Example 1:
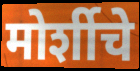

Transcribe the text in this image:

मोर्शीचे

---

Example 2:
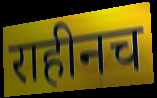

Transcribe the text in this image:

राहीनच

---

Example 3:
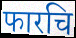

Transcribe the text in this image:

फारचि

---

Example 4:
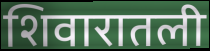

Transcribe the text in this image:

शिवारातली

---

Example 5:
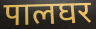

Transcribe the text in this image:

पालघर